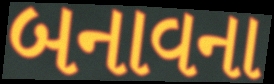
બનાવના